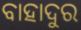
ବାହାଦୁର